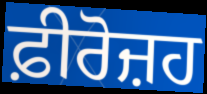
ਫ਼ੀਰੋਜ਼ਹ